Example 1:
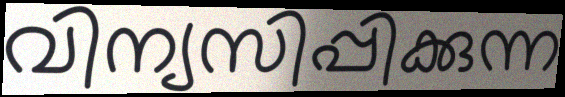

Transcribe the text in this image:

വിന്യസിപ്പിക്കുന്ന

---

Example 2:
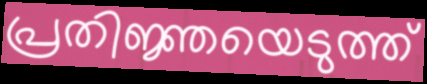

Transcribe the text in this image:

പ്രതിജ്ഞയെടുത്ത്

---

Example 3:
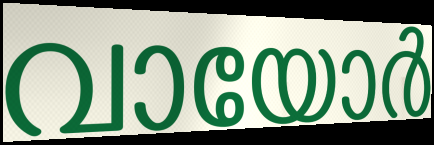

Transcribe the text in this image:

വായോർ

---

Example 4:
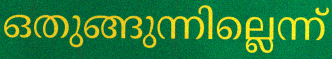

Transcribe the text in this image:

ഒതുങ്ങുന്നില്ലെന്ന്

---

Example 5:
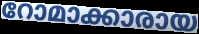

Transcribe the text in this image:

റോമാക്കാരായ